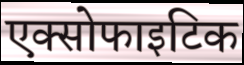
एक्सोफाइटिक